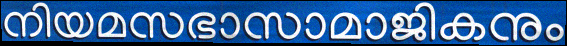
നിയമസഭാസാമാജികനും